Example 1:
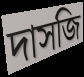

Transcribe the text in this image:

দাসজি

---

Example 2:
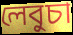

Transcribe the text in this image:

লেবুচা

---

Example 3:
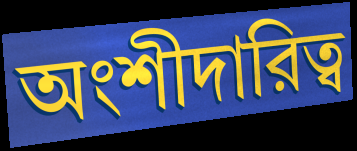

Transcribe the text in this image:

অংশীদারিত্ব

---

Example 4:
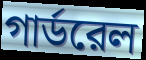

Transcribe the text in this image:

গার্ডরেল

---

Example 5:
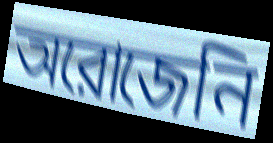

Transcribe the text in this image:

অরোজেনি